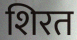
शिरत